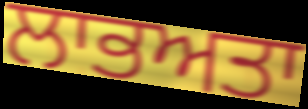
ਲਾਭਅਤਾ